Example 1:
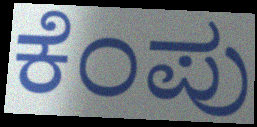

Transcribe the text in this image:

ಕೆಂಪು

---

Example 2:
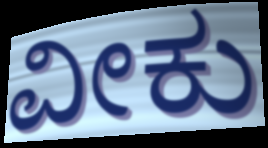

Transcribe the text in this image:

ವೀಕು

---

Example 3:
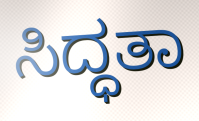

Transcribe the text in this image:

ಸಿದ್ಧತಾ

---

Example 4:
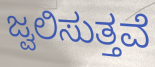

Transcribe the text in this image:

ಜ್ವಲಿಸುತ್ತವೆ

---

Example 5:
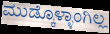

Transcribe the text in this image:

ಮುಡ್ಕೊಳ್ಳಾಂಗಿಲ್ಲ